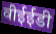
वीईईडी